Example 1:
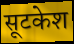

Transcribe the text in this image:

सूटकेश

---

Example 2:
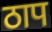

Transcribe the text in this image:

ठाप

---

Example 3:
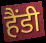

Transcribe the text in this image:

हैंडी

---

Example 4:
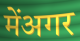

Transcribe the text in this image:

मेंअगर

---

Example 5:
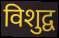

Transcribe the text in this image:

विशुद्व